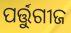
ପର୍ତ୍ତୁଗୀଜ